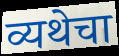
व्यथेचा